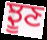
ਝੂਣ